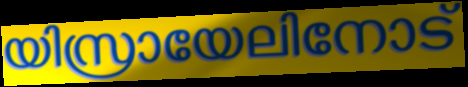
യിസ്രായേലിനോട്